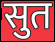
सुत